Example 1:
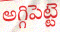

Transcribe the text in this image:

అగ్గిపెట్టె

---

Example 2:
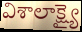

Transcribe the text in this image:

విశాలాక్ష్యై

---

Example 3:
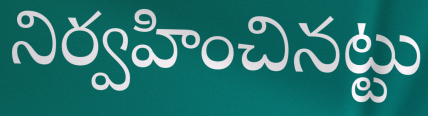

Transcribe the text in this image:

నిర్వహించినట్టు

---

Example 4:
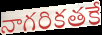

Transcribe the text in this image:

నాగరికతకే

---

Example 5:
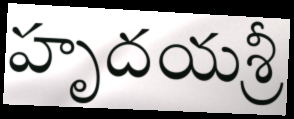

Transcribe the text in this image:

హృదయశ్రీ